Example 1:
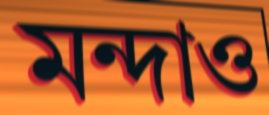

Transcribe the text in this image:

মন্দাও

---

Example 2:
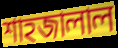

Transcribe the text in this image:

শাহজালাল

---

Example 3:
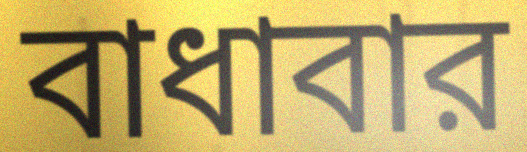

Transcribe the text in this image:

বাধাবার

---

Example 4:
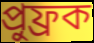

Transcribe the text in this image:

প্রুফ্রক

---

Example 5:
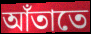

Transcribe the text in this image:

আঁতাতে